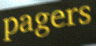
pagers